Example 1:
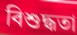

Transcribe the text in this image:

বিশুদ্ধতা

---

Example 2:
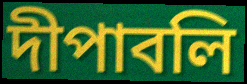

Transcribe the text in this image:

দীপাবলি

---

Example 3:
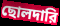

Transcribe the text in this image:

ছোলদারি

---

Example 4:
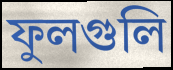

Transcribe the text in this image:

ফুলগুলি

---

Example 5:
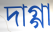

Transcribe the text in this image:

দাগ্গা